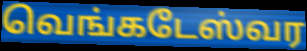
வெங்கடேஸ்வர